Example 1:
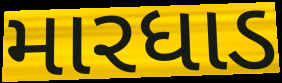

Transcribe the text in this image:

મારધાડ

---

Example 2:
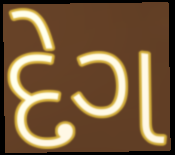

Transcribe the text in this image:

દેગ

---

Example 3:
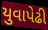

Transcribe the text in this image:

યુવાપેઢી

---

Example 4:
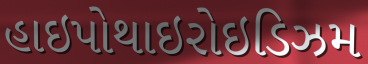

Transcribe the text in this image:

હાઇપોથાઇરોઇડિઝમ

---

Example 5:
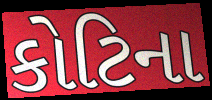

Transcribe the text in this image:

કોટિના